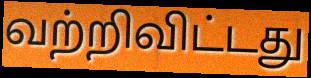
வற்றிவிட்டது